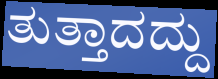
ತುತ್ತಾದದ್ದು